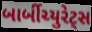
બાર્બીચ્યુરેટ્સ